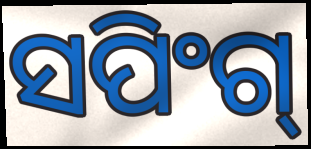
ସପିଂଗ୍